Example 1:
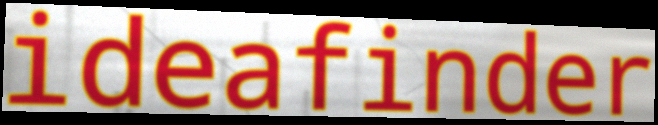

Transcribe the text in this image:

ideafinder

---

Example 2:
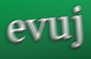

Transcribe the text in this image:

evuj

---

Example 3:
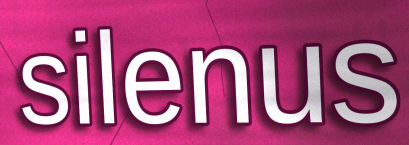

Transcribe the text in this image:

silenus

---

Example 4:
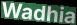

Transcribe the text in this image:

Wadhia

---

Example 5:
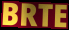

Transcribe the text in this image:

BRTE